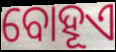
ବୋହୂଏ